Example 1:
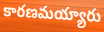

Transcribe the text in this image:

కారణమయ్యారు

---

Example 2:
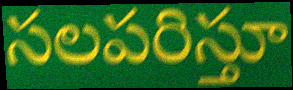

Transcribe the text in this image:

సలపరిస్తూ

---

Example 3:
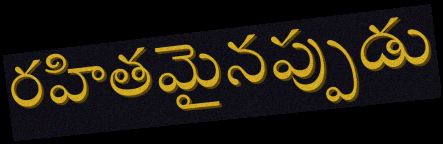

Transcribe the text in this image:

రహితమైనప్పుడు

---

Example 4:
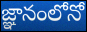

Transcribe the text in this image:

జ్ఞానంలోనో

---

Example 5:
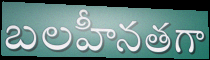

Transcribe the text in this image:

బలహీనతగా